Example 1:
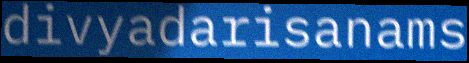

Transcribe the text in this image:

divyadarisanams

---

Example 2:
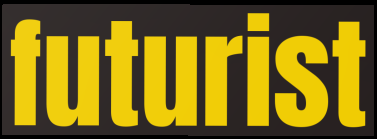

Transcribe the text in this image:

futurist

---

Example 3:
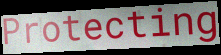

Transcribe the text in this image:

Protecting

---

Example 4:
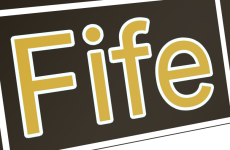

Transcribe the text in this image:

Fife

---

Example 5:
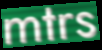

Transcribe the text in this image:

mtrs